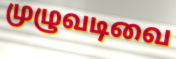
முழுவடிவை